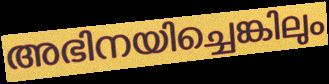
അഭിനയിച്ചെങ്കിലും